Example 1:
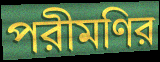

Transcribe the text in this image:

পরীমণির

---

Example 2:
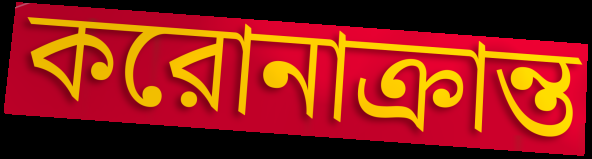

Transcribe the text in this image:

করোনাক্রান্ত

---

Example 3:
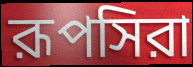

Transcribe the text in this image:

রূপসিরা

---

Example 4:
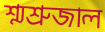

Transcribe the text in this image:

শ্মশ্রুজাল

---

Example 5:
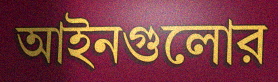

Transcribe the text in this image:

আইনগুলোর